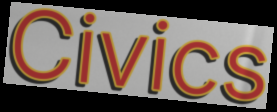
Civics